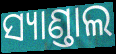
ସ୍ୟାଣ୍ଡାଲ